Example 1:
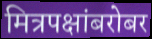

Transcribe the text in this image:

मित्रपक्षांबरोबर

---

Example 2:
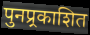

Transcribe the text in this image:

पुनप्र्रकाशित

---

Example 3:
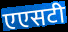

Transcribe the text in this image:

एएसटी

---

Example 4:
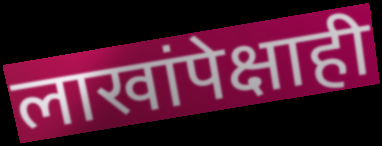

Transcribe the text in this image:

लाखांपेक्षाही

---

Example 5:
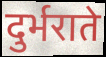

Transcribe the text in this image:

दुर्भराते